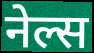
नेल्स